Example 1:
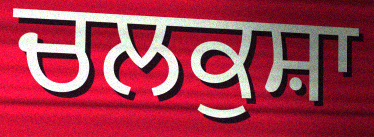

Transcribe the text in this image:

ਚਲਕੁਸ਼ਾ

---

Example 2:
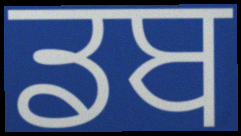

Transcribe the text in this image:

ਡਬ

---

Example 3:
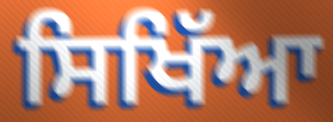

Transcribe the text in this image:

ਸਿਖਿੱਆ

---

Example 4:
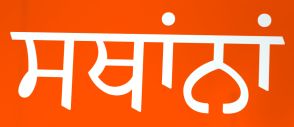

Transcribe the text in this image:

ਸਥਾਂਨਾਂ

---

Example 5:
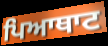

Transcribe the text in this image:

ਪਿਆਥਾਟ